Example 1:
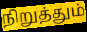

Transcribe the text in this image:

நிறுத்தும்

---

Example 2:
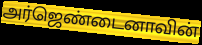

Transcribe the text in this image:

அர்ஜெண்டைனாவின்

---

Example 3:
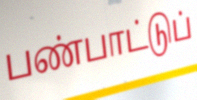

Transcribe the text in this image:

பண்பாட்டுப்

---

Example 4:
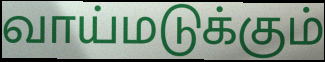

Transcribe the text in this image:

வாய்மடுக்கும்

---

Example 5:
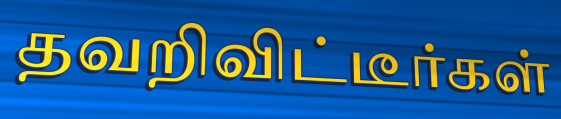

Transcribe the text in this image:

தவறிவிட்டீர்கள்